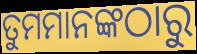
ତୁମମାନଙ୍କଠାରୁ